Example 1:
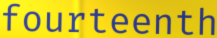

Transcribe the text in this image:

fourteenth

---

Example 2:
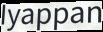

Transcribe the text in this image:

Iyappan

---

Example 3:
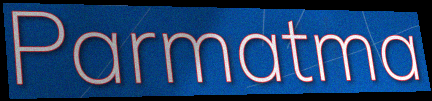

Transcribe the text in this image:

Parmatma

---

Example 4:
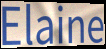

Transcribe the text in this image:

Elaine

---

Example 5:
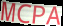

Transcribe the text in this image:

MCPA